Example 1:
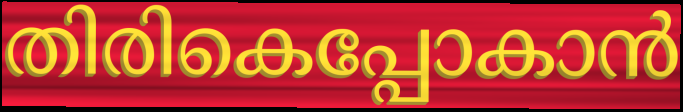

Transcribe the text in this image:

തിരികെപ്പോകാൻ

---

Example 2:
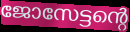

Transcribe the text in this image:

ജോസേട്ടന്റെ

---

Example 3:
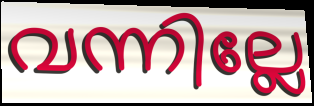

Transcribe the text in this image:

വന്നില്ലേ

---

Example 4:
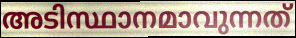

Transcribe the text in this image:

അടിസ്ഥാനമാവുന്നത്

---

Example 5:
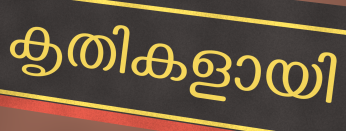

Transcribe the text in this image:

കൃതികളായി